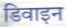
डिवाइन